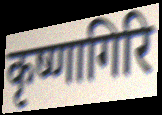
कृष्णागिरि